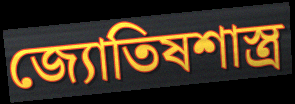
জ্যোতিষশাস্ত্র